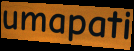
umapati